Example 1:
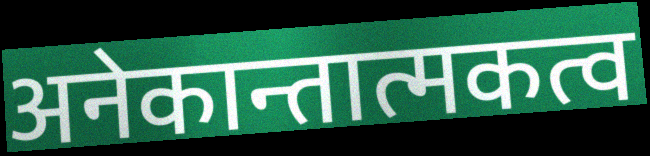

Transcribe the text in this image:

अनेकान्तात्मकत्व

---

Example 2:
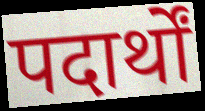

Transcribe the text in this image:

पदार्थों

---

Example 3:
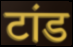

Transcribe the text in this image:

टांड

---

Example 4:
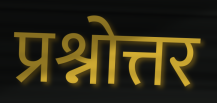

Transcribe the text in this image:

प्रश्नोत्तर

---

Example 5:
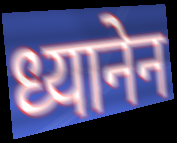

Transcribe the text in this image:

ध्यानेन